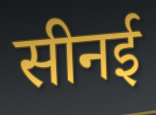
सीनई